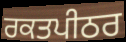
ਰਕਤਪੀਠਰ